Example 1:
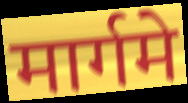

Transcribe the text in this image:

मार्गमे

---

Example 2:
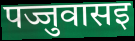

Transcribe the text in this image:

पज्जुवासइ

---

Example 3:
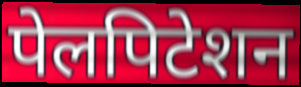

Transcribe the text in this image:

पेलपिटेशन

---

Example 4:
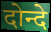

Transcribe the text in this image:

दोन्दे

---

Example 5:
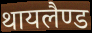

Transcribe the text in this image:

थायलैण्ड